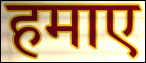
हमाए